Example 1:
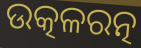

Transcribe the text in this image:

ଉତ୍କଳରତ୍ନ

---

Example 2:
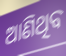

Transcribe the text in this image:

ଆଣିଥିବ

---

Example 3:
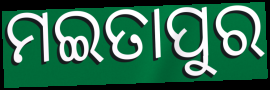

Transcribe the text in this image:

ମଇତାପୁର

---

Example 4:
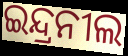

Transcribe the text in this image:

ଇନ୍ଦ୍ରନୀଲ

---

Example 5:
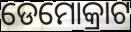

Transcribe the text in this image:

ଡେମୋକ୍ରାଟ